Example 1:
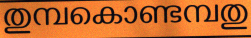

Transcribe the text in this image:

തുമ്പകൊണ്ടമ്പതു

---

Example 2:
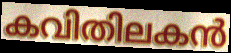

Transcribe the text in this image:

കവിതിലകൻ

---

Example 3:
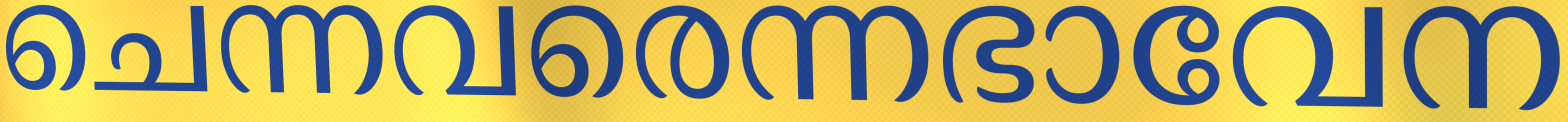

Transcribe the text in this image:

ചെന്നവരെന്നഭാവേന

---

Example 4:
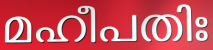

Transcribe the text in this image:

മഹീപതിഃ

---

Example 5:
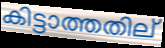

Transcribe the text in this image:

കിട്ടാത്തതില്